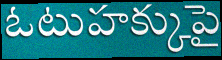
ఓటుహక్కుపై